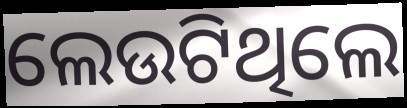
ଲେଉଟିଥିଲେ